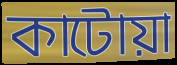
কাটোয়া